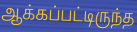
ஆக்கப்பட்டிருந்த